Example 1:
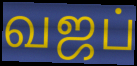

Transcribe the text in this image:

வஜப்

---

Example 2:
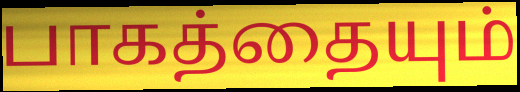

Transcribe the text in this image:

பாகத்தையும்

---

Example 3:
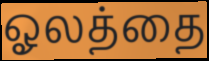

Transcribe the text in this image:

ஓலத்தை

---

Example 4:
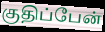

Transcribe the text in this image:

குதிப்பேன்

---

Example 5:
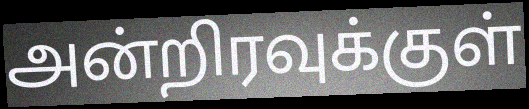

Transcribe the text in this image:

அன்றிரவுக்குள்